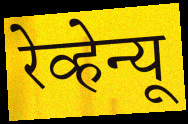
रेव्हेन्यू